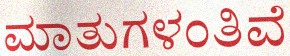
ಮಾತುಗಳಂತಿವೆ